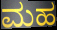
ಮಹ